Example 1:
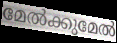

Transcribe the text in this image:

മേൽക്കുമേൽ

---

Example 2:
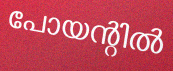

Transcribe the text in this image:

പോയന്റിൽ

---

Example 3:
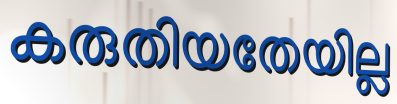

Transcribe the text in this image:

കരുതിയതേയില്ല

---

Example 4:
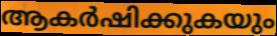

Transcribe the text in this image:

ആകർഷിക്കുകയും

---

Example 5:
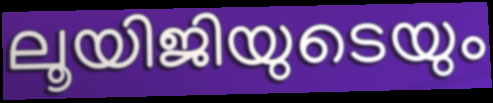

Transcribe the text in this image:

ലൂയിജിയുടെയും